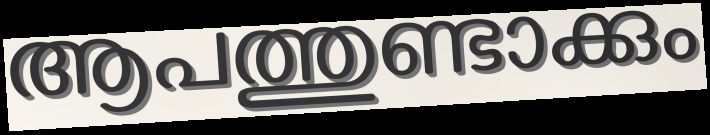
ആപത്തുണ്ടാക്കും